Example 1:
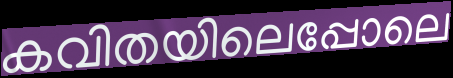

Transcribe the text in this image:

കവിതയിലെപ്പോലെ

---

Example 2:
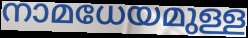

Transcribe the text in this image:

നാമധേയമുള്ള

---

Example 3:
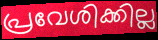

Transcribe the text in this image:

പ്രവേശിക്കില്ല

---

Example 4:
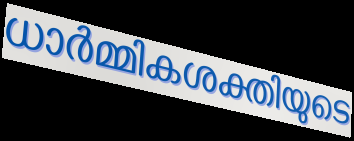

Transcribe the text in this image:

ധാർമ്മികശക്തിയുടെ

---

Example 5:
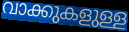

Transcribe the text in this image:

വാക്കുകളുള്ള